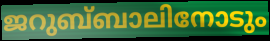
ജറുബ്‌ബാലിനോടും